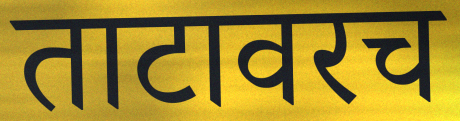
ताटावरच